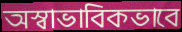
অস্বাভাবিকভাবে